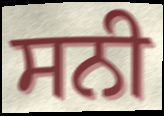
ਸਨੀ